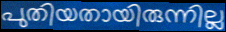
പുതിയതായിരുന്നില്ല